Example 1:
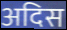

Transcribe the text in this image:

अदिस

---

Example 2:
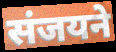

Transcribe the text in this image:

संजयने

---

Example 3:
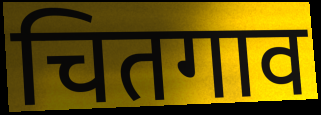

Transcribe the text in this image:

चितगाव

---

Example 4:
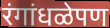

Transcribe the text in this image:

रंगांधळेपण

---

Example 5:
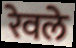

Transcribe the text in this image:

रेवले